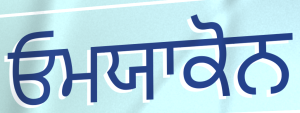
ਓਮਯਾਕੋਨ